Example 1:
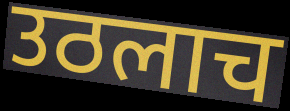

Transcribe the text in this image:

उठलाच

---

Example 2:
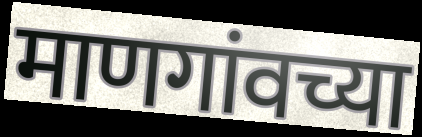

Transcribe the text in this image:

माणगांवच्या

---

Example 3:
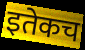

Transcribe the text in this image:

इतेकच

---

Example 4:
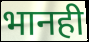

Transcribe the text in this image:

भानही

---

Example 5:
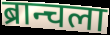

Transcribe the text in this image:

ब्रान्चला